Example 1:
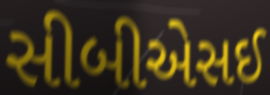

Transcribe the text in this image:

સીબીએસઈ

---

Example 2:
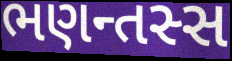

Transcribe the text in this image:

ભણન્તસ્સ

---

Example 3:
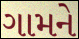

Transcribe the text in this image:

ગામને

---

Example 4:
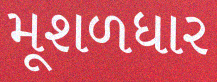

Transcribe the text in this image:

મૂશળધાર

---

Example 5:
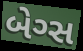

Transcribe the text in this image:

બેગ્સ